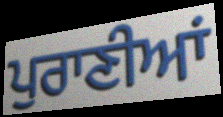
ਪੁਰਾਣੀਆਂ